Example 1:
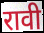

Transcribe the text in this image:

रावी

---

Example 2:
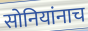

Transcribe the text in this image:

सोनियांनाच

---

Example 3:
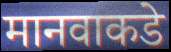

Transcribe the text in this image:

मानवाकडे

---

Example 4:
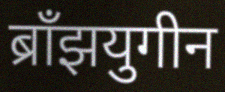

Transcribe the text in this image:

ब्राँझयुगीन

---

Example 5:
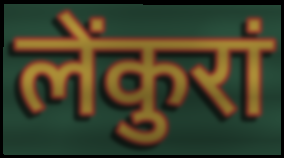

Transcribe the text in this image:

लेंकुरां